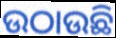
ଉଠାଉଛି